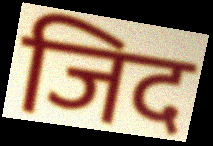
जिद